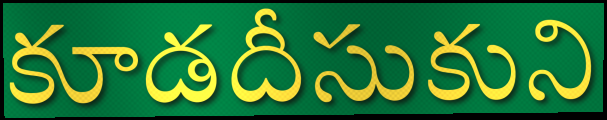
కూడదీసుకుని